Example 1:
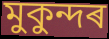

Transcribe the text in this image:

মুকুন্দৰ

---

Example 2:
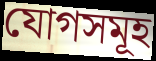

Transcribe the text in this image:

যোগসমূহ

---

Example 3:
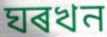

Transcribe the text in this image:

ঘৰখন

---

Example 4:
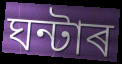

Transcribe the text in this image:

ঘন্টাৰ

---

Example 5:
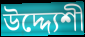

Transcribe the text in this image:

উদ্দ্যেশী